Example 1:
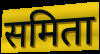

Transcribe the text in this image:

समिता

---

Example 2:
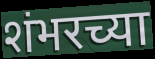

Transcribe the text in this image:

शंभरच्या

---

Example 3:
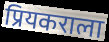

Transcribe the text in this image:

प्रियकराला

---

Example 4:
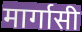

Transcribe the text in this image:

मार्गासी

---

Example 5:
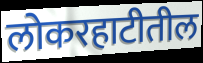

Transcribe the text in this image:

लोकरहाटीतील